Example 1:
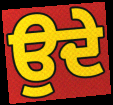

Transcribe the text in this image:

ਉਦੇ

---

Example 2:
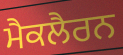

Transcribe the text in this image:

ਮੈਕਲੈਰਨ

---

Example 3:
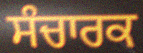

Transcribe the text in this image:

ਸੰਚਾਰਕ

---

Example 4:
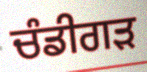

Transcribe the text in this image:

ਚੰਡੀਗੜ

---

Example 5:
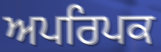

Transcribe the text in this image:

ਅਪਰਿਪਕ